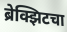
ब्रेक्झिटचा